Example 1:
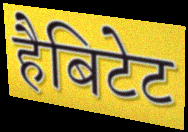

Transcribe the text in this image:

हैबिटेट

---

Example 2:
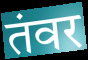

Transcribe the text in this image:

तंवर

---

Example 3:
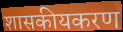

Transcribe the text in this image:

शासकीयकरण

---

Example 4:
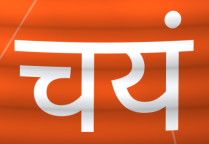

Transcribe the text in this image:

चयं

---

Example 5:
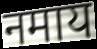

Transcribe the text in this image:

नमाय